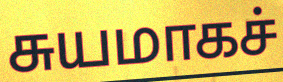
சுயமாகச்